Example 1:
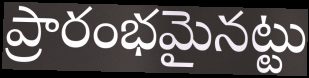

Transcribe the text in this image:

ప్రారంభమైనట్టు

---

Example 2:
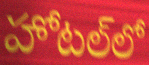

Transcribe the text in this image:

హోటల్‌లో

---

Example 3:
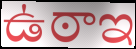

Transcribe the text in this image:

ఉఠాఇ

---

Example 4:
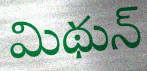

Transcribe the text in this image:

మిథున్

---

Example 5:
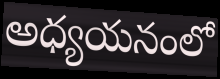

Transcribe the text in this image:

అధ్యయనంలో